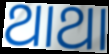
ଥାଥା